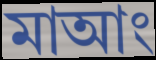
মাআং